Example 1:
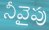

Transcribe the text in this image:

నీవైపు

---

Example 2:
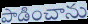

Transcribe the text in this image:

పాడించాను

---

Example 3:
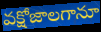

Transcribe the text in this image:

వక్షోజాలగానూ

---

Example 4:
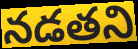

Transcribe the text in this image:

నడతని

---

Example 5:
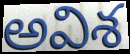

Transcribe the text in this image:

అవిశ